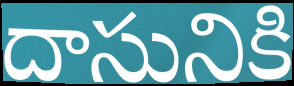
దాసునికి